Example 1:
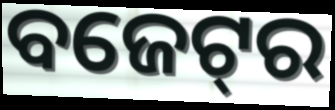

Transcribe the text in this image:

ବଜେଟ୍‌ର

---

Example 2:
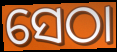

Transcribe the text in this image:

ସେଠା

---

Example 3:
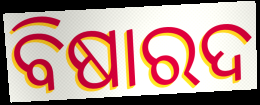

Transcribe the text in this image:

ବିଷାରଦ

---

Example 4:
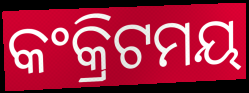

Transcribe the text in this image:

କଂକ୍ରିଟମୟ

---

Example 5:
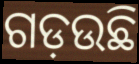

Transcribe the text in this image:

ଗଡ଼ଉଛି